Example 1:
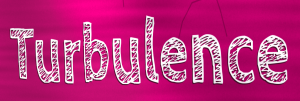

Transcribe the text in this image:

Turbulence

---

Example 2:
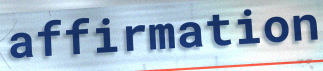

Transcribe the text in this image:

affirmation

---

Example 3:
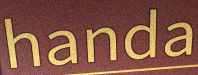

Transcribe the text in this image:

handa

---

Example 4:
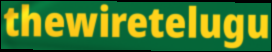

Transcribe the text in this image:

thewiretelugu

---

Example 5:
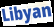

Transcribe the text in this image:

Libyan